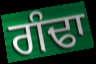
ਗੰਢਾ